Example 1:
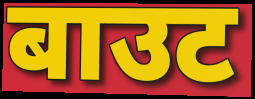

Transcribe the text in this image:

बाउट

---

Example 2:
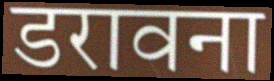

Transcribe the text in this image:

डरावना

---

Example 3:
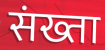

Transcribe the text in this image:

संख्ता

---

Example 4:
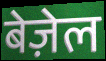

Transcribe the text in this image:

बेज़ेल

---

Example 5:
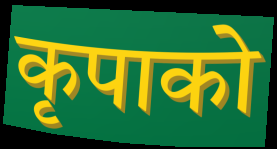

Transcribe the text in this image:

कृपाको